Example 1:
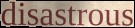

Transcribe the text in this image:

disastrous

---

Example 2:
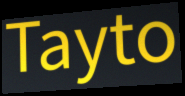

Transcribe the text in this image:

Tayto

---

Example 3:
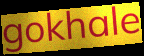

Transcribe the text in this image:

gokhale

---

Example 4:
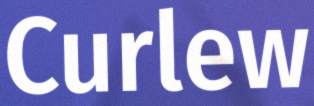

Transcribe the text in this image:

Curlew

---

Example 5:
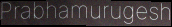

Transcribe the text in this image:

Prabhamurugesh